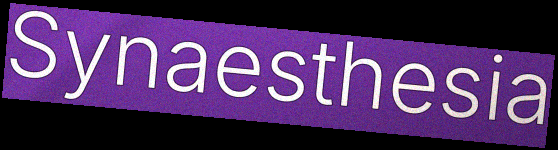
Synaesthesia